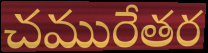
చమురేతర